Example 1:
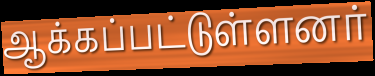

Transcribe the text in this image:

ஆக்கப்பட்டுள்ளனர்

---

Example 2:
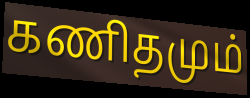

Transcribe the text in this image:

கணிதமும்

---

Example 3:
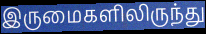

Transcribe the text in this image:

இருமைகளிலிருந்து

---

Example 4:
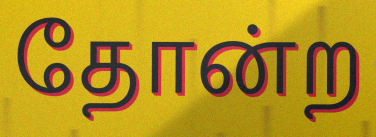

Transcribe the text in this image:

தோன்ற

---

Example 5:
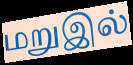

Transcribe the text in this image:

மறுஇல்